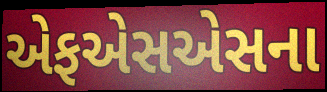
એફએસએસના